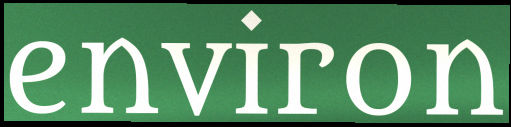
environ